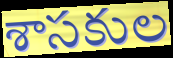
శాసకుల